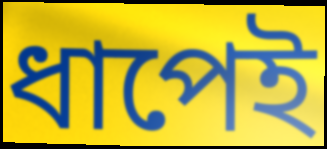
ধাপেই